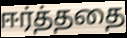
ஈர்த்ததை